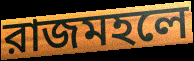
রাজমহলে